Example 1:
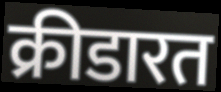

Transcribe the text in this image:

क्रीडारत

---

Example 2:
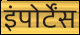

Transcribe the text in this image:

इंपोर्टेंस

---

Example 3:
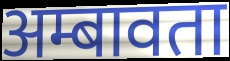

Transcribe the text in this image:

अम्बावता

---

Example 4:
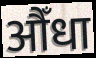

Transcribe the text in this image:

औँधा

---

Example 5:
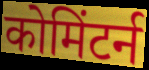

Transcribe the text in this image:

कोमिंटर्न